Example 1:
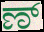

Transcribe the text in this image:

ಣ್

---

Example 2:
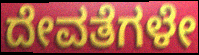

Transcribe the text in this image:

ದೇವತೆಗಳೇ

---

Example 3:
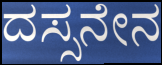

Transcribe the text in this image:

ದಸ್ಸನೇನ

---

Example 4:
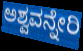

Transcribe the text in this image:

ಅಶ್ವವನ್ನೇರಿ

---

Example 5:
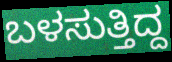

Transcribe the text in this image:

ಬಳಸುತ್ತಿದ್ದ